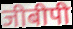
जीबीपी